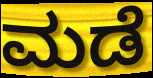
ಮಡೆ